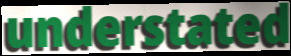
understated